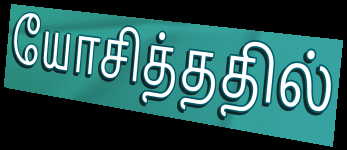
யோசித்ததில்